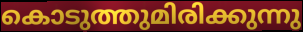
കൊടുത്തുമിരിക്കുന്നു